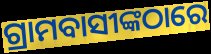
ଗ୍ରାମବାସୀଙ୍କଠାରେ